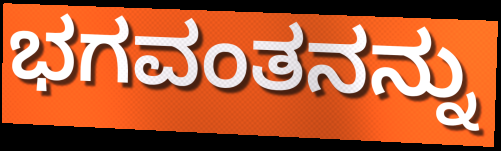
ಭಗವಂತನನ್ನು